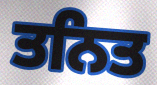
ਤਨਿਤ